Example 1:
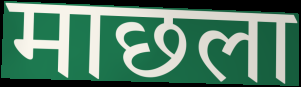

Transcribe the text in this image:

माछला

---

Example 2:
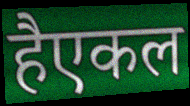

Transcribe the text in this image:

हैएकल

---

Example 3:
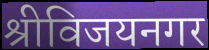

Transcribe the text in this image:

श्रीविजयनगर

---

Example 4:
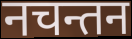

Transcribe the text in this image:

नचन्तन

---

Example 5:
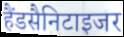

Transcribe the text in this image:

हैंडसैनिटाइजर